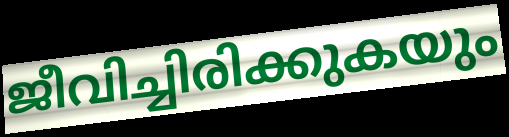
ജീവിച്ചിരിക്കുകയും